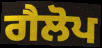
ਗੈਲੋਪ